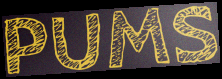
PUMS